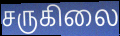
சருகிலை